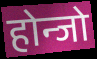
होन्जो